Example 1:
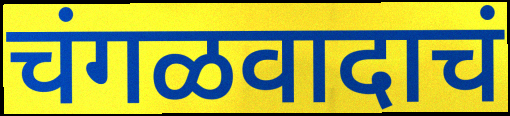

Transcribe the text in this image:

चंगळवादाचं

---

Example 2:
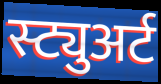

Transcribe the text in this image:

स्ट्युअर्ट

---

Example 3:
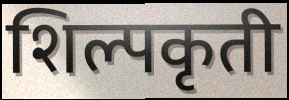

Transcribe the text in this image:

शिल्पकृती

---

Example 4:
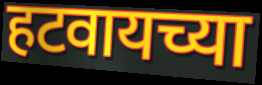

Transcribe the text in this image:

हटवायच्या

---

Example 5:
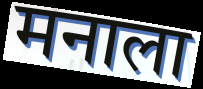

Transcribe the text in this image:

मनाला